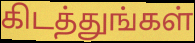
கிடத்துங்கள்